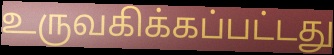
உருவகிக்கப்பட்டது